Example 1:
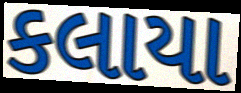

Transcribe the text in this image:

કલાયા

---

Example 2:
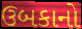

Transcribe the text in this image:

ઉબકાનો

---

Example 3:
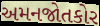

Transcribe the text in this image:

અમનજોતકોર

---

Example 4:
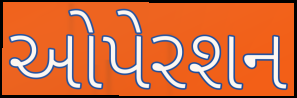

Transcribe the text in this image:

ઓપેરશન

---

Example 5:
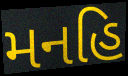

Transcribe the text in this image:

મનહિ